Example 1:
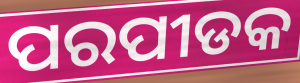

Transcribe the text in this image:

ପରପୀଡକ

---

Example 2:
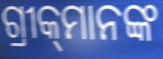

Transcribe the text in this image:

ଗ୍ରୀକ୍‌ମାନଙ୍କ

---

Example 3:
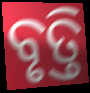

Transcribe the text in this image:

ବୃତ୍ତି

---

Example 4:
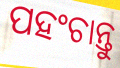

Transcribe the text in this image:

ପହଂଚାନ୍ତୁ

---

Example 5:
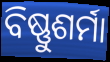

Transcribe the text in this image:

ବିଷ୍ଣୁଶର୍ମା